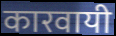
कारवायी